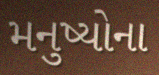
મનુષ્યોના